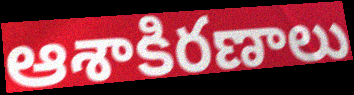
ఆశాకిరణాలు